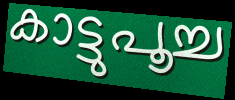
കാട്ടുപൂച്ച